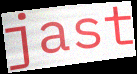
jast